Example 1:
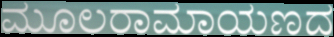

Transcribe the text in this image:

ಮೂಲರಾಮಾಯಣದ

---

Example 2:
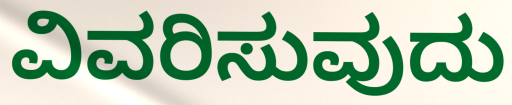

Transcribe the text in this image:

ವಿವರಿಸುವುದು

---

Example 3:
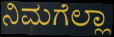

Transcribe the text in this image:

ನಿಮಗೆಲ್ಲಾ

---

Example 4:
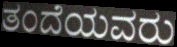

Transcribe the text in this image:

ತಂದೆಯವರು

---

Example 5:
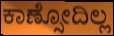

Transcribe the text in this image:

ಕಾಣ್ಸೋದಿಲ್ಲ